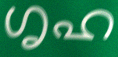
ഗൃഹ